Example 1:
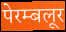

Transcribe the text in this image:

पेरम्बलूर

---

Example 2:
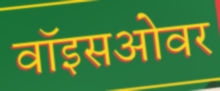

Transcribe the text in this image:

वॉइसओवर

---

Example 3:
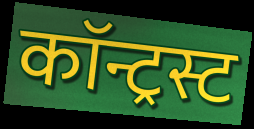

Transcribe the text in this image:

कॉन्ट्रस्ट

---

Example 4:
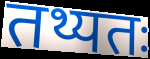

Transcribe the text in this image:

तथ्यतः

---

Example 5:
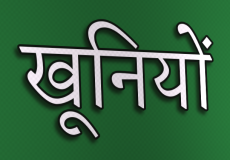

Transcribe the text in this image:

खूनियों